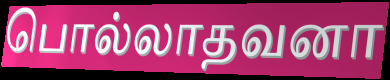
பொல்லாதவனா